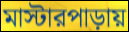
মাস্টারপাড়ায়